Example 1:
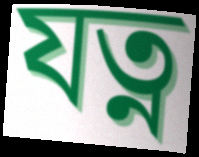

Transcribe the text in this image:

যত্ন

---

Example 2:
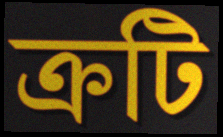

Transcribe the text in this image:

ক্রটি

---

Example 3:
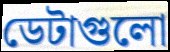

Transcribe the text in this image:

ডেটাগুলো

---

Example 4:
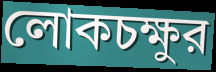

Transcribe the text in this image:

লোকচক্ষুর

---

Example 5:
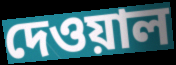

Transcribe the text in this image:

দেওয়াল